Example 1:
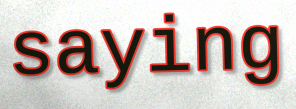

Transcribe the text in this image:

saying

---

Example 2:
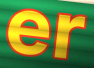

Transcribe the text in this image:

er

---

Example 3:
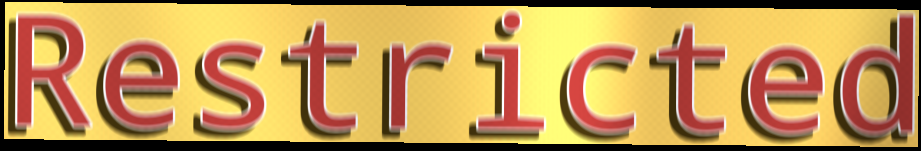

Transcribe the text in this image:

Restricted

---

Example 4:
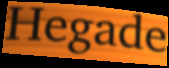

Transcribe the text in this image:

Hegade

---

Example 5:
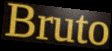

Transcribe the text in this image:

Bruto